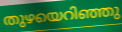
തുഴയെറിഞ്ഞു